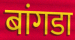
बांगडा